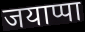
जयाप्पा